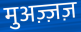
मुअज़्ज़ज़